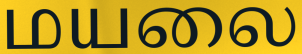
மயலை